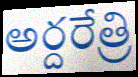
అర్దరేత్రి